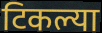
टिकल्या